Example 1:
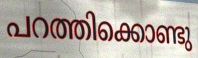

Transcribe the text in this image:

പറത്തിക്കൊണ്ടു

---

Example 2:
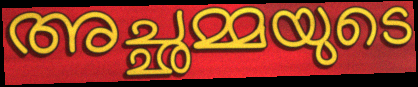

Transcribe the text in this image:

അച്ഛമ്മയുടെ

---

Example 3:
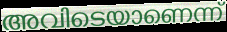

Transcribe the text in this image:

അവിടെയാണെന്ന്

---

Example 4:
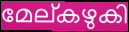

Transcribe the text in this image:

മേല്കഴുകി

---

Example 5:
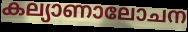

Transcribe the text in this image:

കല്യാണാലോചന